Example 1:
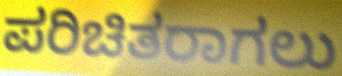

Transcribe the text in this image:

ಪರಿಚಿತರಾಗಲು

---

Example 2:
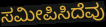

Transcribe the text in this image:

ಸಮೀಪಿಸಿದೆವು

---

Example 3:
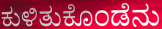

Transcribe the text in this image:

ಕುಳಿತುಕೊಂಡೆನು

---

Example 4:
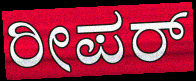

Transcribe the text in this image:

ರೀಪರ್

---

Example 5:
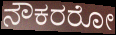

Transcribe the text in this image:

ನೌಕರರೋ